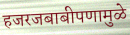
हजरजबाबीपणामुळे